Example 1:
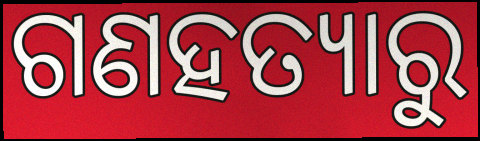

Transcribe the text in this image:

ଗଣହତ୍ୟାରୁ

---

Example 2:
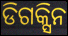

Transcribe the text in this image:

ଡିଗକ୍ସିନ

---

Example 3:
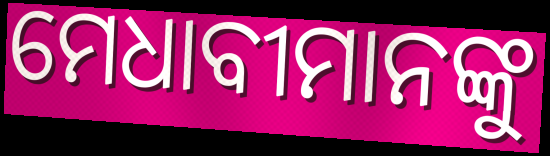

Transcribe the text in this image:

ମେଧାବୀମାନଙ୍କୁ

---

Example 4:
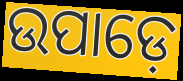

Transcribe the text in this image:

ଉପାଡ଼େ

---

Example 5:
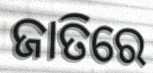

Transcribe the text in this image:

ଜାତିରେ